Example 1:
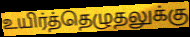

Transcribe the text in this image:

உயிர்த்தெழுதலுக்கு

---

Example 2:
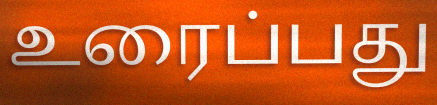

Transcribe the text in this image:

உரைப்பது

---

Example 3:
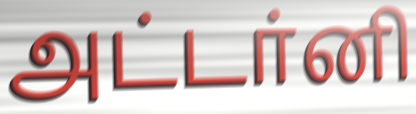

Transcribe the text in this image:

அட்டர்னி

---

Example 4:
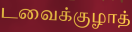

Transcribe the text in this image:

டவைக்குழாத்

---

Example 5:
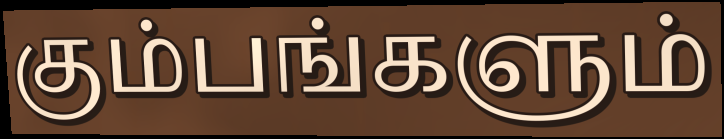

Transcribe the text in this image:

கும்பங்களும்